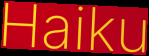
Haiku